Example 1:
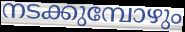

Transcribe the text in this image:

നടക്കുമ്പോഴും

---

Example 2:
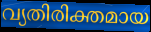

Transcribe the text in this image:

വ്യതിരിക്തമായ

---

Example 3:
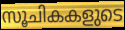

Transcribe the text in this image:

സൂചികകളുടെ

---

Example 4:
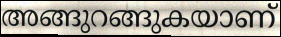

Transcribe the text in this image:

അങ്ങുറങ്ങുകയാണ്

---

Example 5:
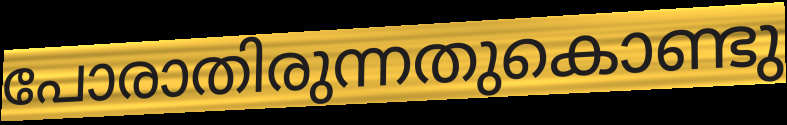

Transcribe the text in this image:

പോരാതിരുന്നതുകൊണ്ടു